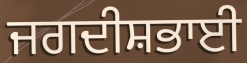
ਜਗਦੀਸ਼ਭਾਈ